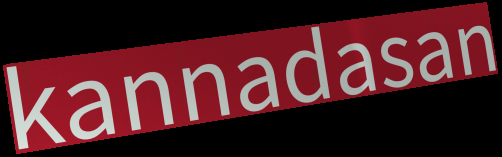
kannadasan